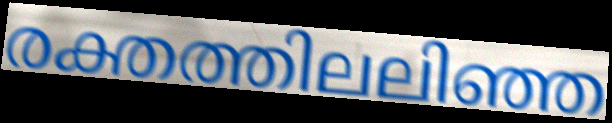
രക്തത്തിലലിഞ്ഞ